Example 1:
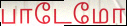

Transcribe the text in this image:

பாடேமோ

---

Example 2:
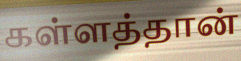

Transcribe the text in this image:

கள்ளத்தான்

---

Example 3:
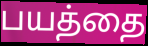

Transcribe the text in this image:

பயத்தை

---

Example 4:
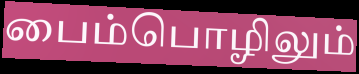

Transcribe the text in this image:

பைம்பொழிலும்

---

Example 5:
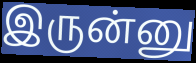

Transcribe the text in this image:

இருன்னு